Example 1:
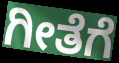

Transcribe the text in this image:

ಗೀತೆಗೆ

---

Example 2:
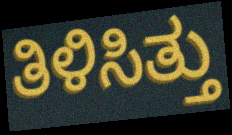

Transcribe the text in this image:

ತಿಳಿಸಿತ್ತು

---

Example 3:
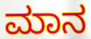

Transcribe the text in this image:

ಮಾನ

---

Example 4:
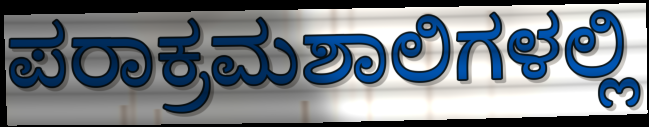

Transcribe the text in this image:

ಪರಾಕ್ರಮಶಾಲಿಗಳಲ್ಲಿ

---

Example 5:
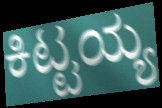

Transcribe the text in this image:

ಕಿಟ್ಟಯ್ಯ